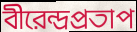
বীরেন্দ্রপ্রতাপ